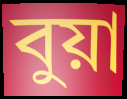
বুয়া